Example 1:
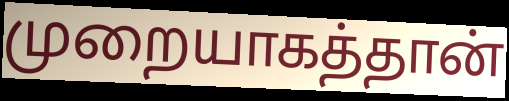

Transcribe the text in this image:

முறையாகத்தான்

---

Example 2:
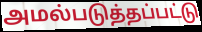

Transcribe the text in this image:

அமல்படுத்தப்பட்டு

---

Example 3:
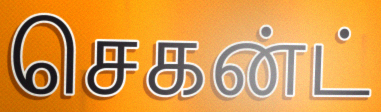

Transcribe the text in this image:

செகன்ட்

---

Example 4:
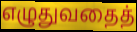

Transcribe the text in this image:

எழுதுவதைத்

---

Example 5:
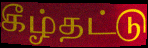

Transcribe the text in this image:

கீழ்தட்டு